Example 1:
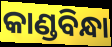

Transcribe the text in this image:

କାଣ୍ଡବିନ୍ଧା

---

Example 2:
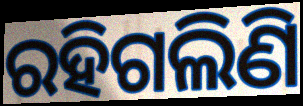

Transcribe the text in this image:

ରହିଗଲିଣି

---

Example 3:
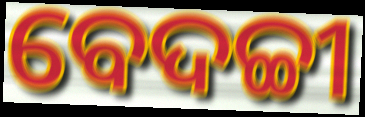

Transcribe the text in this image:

ବେଦଚ୍ଚୀ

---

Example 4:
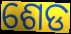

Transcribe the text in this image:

ଶେଡ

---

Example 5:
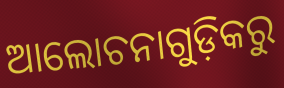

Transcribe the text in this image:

ଆଲୋଚନାଗୁଡ଼ିକରୁ